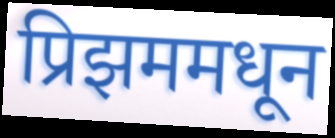
प्रिझममधून